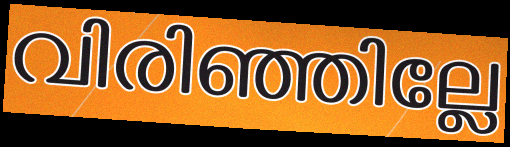
വിരിഞ്ഞില്ലേ